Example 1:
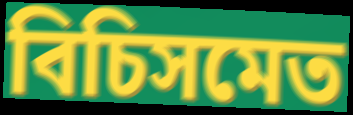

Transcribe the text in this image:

বিচিসমেত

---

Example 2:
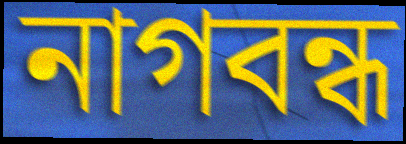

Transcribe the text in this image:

নাগবন্ধ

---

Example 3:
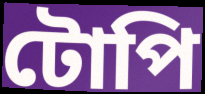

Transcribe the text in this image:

টোপি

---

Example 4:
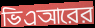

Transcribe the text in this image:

ভিএআরের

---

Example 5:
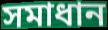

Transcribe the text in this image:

সমাধান